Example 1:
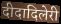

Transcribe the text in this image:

दीदादिलेरी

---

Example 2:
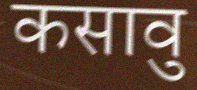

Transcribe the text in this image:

कसावु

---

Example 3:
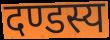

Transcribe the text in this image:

दण्डस्य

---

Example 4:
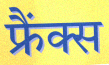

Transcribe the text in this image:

फ्रैंक्स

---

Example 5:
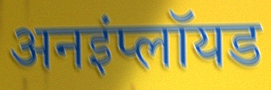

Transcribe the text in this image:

अनइंप्लॉयड